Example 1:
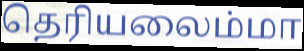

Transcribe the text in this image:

தெரியலைம்மா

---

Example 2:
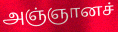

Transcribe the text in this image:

அஞ்ஞானச்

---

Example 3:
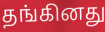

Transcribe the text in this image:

தங்கினது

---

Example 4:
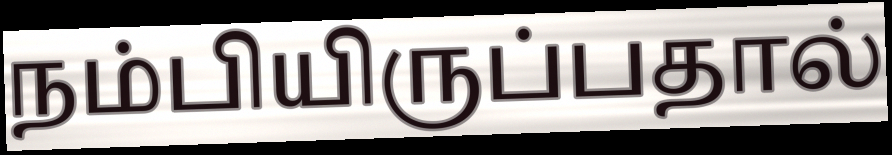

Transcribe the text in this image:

நம்பியிருப்பதால்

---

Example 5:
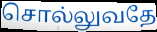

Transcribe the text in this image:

சொல்லுவதே